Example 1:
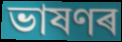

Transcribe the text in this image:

ভাষণৰ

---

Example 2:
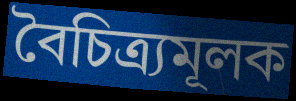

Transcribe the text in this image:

বৈচিত্ৰ্যমূলক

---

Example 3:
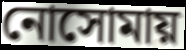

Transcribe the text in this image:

নোসোমায়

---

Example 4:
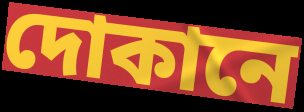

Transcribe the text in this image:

দোকানে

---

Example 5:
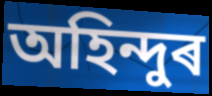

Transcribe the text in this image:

অহিন্দুৰ